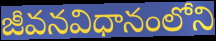
జీవనవిధానంలోని